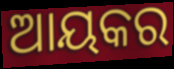
ଆୟକର